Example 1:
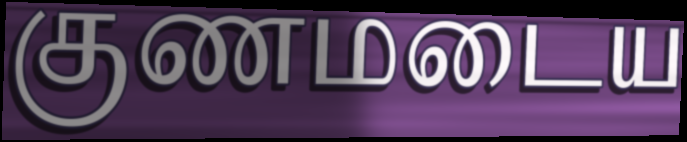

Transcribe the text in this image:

குணமடைய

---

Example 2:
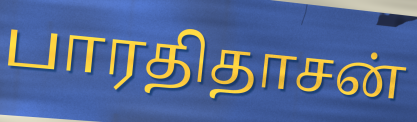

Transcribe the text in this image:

பாரதிதாசன்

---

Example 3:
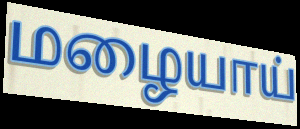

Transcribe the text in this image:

மழையாய்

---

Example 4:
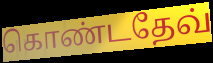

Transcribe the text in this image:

கொண்டதேவ்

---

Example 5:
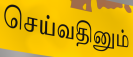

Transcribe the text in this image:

செய்வதினும்